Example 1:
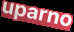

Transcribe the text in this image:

uparno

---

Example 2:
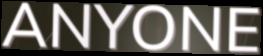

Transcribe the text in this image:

ANYONE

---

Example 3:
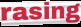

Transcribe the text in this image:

rasing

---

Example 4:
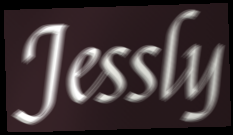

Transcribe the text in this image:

Jessly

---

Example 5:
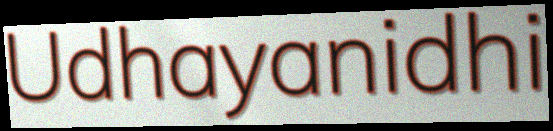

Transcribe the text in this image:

Udhayanidhi